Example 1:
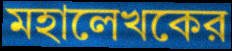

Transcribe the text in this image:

মহালেখকের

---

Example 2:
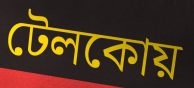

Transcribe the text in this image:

টেলকোয়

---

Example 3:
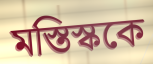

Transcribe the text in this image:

মস্তিস্ককে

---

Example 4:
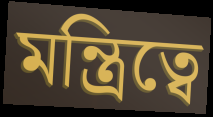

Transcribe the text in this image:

মন্ত্রিত্বে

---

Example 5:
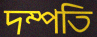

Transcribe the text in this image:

দম্পতি